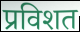
प्रविशत